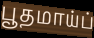
பூதமாய்ப்